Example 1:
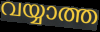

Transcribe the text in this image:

വയ്യാത്ത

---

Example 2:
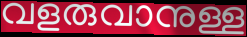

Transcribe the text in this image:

വളരുവാനുള്ള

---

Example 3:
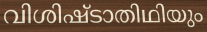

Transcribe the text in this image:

വിശിഷ്ടാതിഥിയും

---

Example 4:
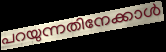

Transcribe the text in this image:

പറയുന്നതിനേക്കാൾ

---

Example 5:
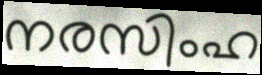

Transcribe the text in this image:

നരസിംഹ